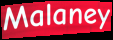
Malaney